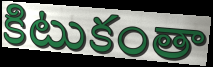
కిటుకంతా